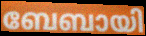
ബേബായി